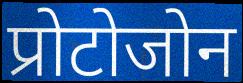
प्रोटोजोन